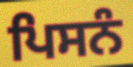
ਪਿਸਨੰ